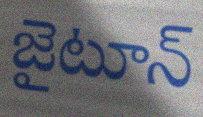
జైటూన్